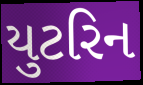
યુટરિન